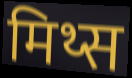
मिथ्स